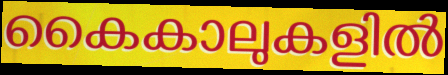
കൈകാലുകളിൽ